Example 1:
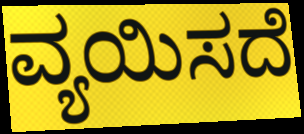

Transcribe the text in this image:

ವ್ಯಯಿಸದೆ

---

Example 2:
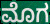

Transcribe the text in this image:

ಮೊಗ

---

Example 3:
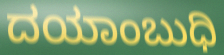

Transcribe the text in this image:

ದಯಾಂಬುಧಿ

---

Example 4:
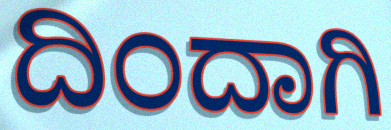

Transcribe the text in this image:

ದಿಂದಾಗಿ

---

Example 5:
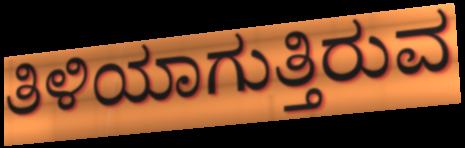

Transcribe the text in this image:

ತಿಳಿಯಾಗುತ್ತಿರುವ